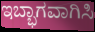
ಇಬ್ಭಾಗವಾಗಿಸಿ